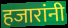
हजारांनी